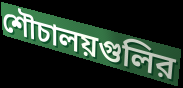
শৌচালয়গুলির